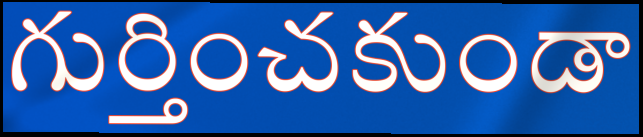
గుర్తించకుండా